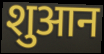
शुआन